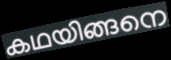
കഥയിങ്ങനെ